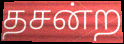
தசன்ற